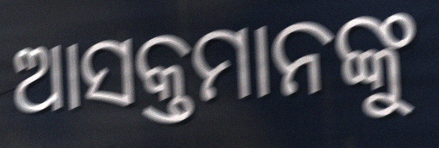
ଆସକ୍ତମାନଙ୍କୁ